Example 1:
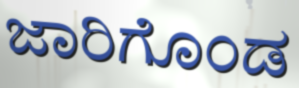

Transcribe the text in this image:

ಜಾರಿಗೊಂಡ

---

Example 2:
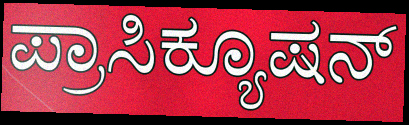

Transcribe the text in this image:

ಪ್ರಾಸಿಕ್ಯೂಷನ್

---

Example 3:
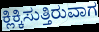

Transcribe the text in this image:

ಕ್ಲಿಕ್ಕಿಸುತ್ತಿರುವಾಗ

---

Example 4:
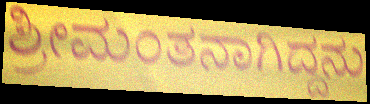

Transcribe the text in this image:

ಶ್ರೀಮಂತನಾಗಿದ್ದನು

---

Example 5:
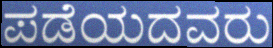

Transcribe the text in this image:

ಪಡೆಯದವರು